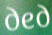
ded